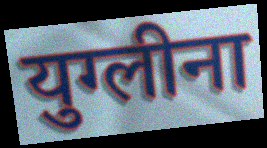
युग्लीना